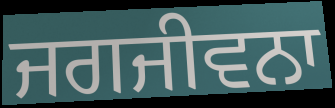
ਜਗਜੀਵਨਾ